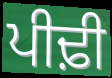
ਪੀਢ਼ੀ